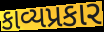
કાવ્યપ્રકાર